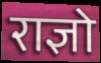
राज्ञो